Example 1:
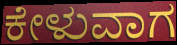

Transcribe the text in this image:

ಕೇಳುವಾಗ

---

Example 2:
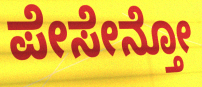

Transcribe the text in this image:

ಪೇಸೇನ್ತೋ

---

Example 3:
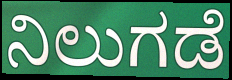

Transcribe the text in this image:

ನಿಲುಗಡೆ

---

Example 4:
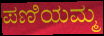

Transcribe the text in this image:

ಪಣಿಯಮ್ಮ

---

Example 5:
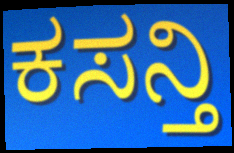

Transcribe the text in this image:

ಕಸನ್ತಿ